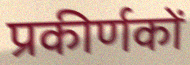
प्रकीर्णकों